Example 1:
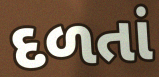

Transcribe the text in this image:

દળતાં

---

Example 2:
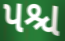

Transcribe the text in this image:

પશ્ચ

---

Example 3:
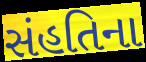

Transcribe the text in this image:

સંહતિના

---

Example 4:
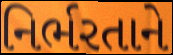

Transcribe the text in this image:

નિર્ભરતાને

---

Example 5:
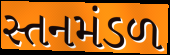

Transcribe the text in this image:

સ્તનમંડળ